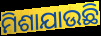
ମିଶାଯାଉଛି